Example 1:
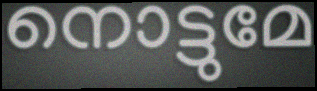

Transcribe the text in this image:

നൊട്ടുമേ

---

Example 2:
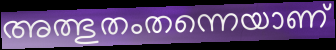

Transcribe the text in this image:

അത്ഭുതംതന്നെയാണ്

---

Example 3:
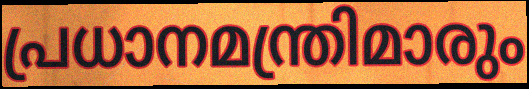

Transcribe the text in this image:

പ്രധാനമന്ത്രിമാരും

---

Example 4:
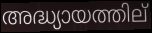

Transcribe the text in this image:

അദ്ധ്യായത്തില്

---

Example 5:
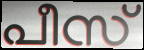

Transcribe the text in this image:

പീസ്